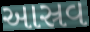
આસ્રવ